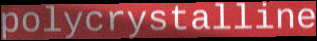
polycrystalline